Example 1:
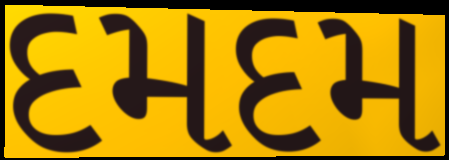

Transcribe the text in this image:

દમદમ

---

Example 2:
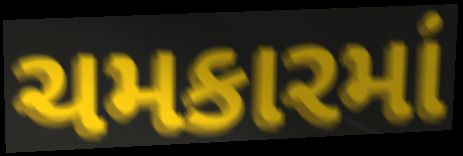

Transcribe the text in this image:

ચમકારમાં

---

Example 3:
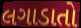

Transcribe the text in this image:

લગાડાતો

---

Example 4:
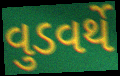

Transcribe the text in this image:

વુડવર્થે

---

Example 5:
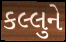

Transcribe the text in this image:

કલ્લુને